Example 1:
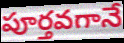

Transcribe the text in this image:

పూర్తవగానే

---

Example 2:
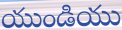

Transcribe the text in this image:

యుండియు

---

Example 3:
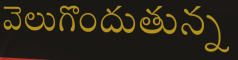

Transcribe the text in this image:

వెలుగొందుతున్న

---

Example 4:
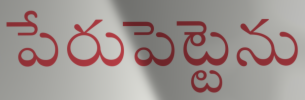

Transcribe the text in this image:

పేరుపెట్టెను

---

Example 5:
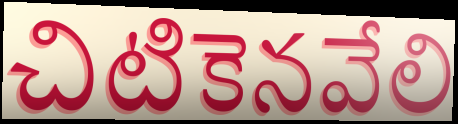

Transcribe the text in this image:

చిటికెనవేలి